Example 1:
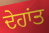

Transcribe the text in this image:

ਦੇਹਾਂਤ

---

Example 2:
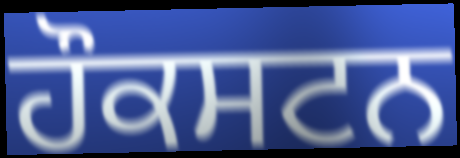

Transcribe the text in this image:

ਹੌਕਸਟਨ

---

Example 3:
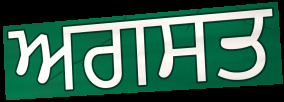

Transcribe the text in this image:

ਅਗਸਤ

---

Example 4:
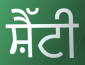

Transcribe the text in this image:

ਸ਼ੈੱਟੀ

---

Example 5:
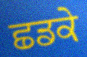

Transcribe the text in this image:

ਛਡਕੇ